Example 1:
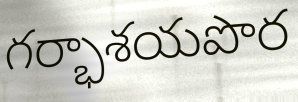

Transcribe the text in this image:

గర్భాశయపొర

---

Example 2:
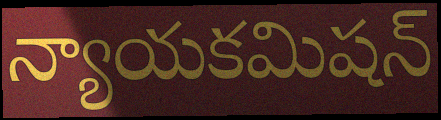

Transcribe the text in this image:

న్యాయకమిషన్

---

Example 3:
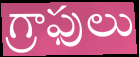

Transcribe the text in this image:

గ్రాఫులు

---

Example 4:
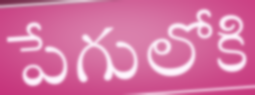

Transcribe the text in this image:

పేగులోకి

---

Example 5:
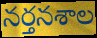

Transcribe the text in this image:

నర్తనశాల